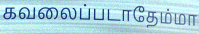
கவலைப்படாதேம்மா